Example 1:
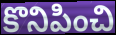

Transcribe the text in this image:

కొనిపించి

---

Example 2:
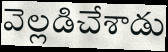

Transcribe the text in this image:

వెల్లడిచేశాడు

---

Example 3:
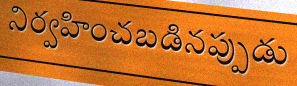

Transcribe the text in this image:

నిర్వహించబడినప్పుడు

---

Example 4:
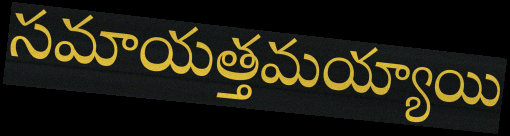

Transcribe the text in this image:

సమాయత్తమయ్యాయి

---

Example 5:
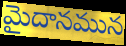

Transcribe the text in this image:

మైదానమున